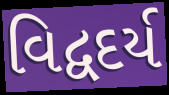
વિદ્વદર્ય